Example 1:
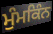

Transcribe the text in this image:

ਮੁੰਮਕਿੰਨ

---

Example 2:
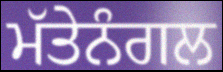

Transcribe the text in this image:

ਮੱਤੇਨੰਗਲ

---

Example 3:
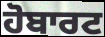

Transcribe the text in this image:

ਹੋਬਾਰਟ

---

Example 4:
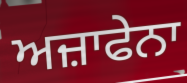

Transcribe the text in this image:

ਅਜ਼ਾਫੇਨਾ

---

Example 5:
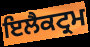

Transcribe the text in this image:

ਇਲੈਕਟ੍ਰਮ